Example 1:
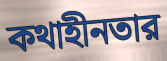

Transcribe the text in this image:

কথাহীনতার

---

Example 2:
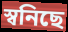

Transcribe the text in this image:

স্বনিছে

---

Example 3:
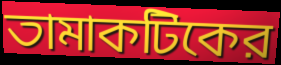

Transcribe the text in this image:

তামাকটিকের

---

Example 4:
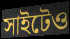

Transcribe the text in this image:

সাইটেও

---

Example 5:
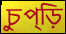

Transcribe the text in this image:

চুপ্‌ড়ি